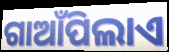
ଗାଆଁପିଲାଏ